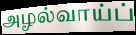
அழல்வாய்ப்